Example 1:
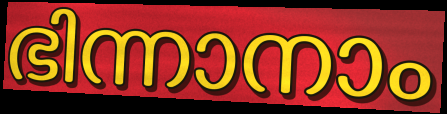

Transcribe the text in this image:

ഭിന്നാനാം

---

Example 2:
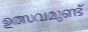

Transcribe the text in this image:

ഉത്സവമുണ്ട്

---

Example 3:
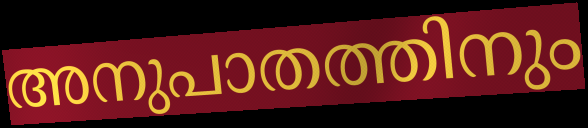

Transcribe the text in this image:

അനുപാതത്തിനും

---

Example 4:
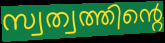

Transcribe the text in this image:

സ്വത്വത്തിന്റെ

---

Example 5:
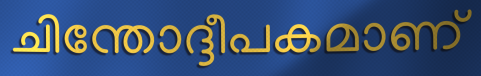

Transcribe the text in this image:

ചിന്തോദ്ദീപകമാണ്